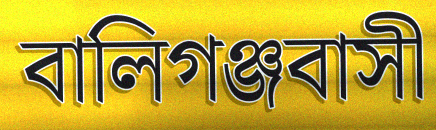
বালিগঞ্জবাসী